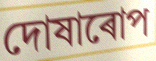
দোষাৰোপ